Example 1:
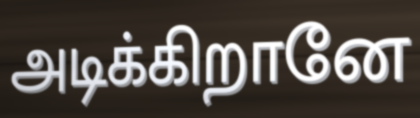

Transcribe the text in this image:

அடிக்கிறானே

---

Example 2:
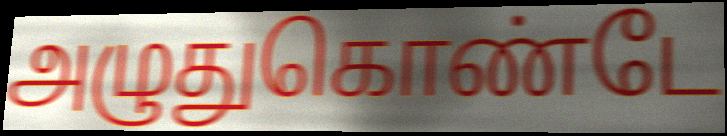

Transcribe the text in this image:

அழுதுகொண்டே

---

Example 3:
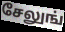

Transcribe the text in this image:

சேலுங்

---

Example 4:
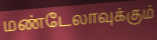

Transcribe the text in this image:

மண்டேலாவுக்கும்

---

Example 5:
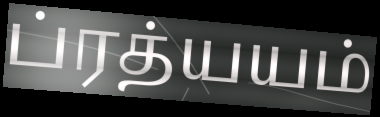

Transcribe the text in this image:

ப்ரத்யயம்